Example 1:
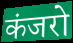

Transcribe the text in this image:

कंजरो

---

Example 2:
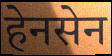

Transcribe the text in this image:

हेनसेन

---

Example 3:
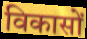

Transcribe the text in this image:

विकासों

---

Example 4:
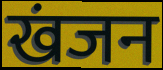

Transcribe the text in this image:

खंजन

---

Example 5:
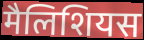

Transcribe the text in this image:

मैलिशियस